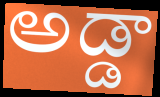
అడ్డా